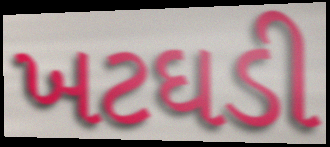
ખટઘડી